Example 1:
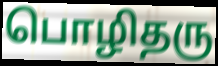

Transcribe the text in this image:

பொழிதரு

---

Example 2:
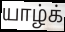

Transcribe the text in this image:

யாழ்க்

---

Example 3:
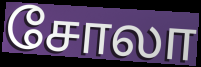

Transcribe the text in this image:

சோலா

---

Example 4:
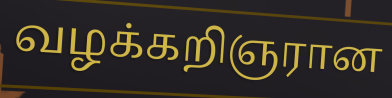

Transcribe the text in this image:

வழக்கறிஞரான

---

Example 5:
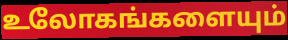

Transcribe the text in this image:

உலோகங்களையும்